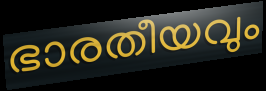
ഭാരതീയവും